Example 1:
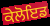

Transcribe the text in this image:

ਕੇਲੋਇਡ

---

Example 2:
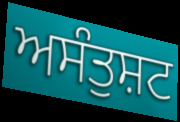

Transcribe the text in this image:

ਅਸੰਤੁਸ਼ਟ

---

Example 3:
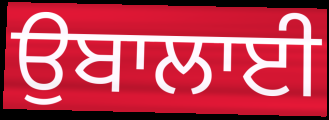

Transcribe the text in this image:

ਉਬਾਲਾਈ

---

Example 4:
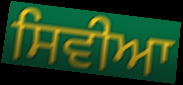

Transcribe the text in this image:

ਸਿਵੀਆ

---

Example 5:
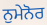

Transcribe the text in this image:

ਨੁਮੇਨੋਰ